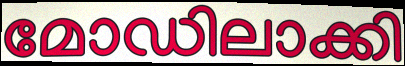
മോഡിലാക്കി